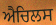
ਐਚਿਲਸ